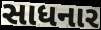
સાધનાર